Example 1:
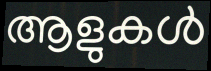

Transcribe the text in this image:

ആളുകൾ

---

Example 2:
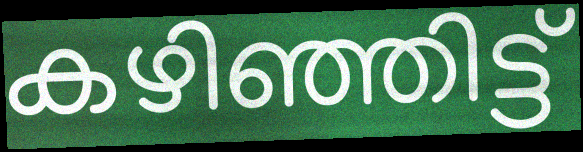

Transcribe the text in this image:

കഴിഞ്ഞിട്ട്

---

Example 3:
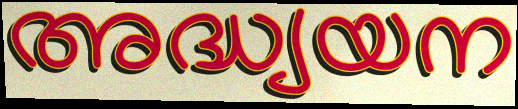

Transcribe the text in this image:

അദ്ധ്യയന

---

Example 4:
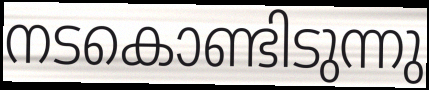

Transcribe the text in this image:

നടകൊണ്ടിടുന്നു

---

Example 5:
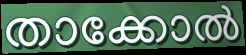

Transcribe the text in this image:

താക്കോൽ